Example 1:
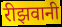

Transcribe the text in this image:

रीझवानी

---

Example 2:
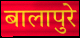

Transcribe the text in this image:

बालापुरे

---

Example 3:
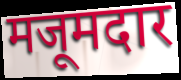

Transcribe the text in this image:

मजूमदार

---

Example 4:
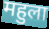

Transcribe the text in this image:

महुला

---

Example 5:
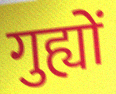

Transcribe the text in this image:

गुह्यों